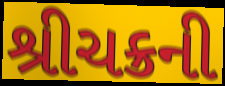
શ્રીચક્રની